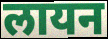
लायन